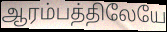
ஆரம்பத்திலேயே